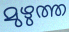
മുഴുത്ത